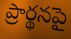
ప్రార్థనపై